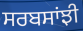
ਸਰਬਸਾਂਝੀ